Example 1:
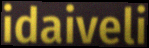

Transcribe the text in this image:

idaiveli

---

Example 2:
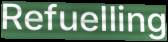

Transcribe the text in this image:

Refuelling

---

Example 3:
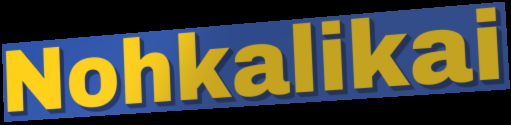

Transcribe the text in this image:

Nohkalikai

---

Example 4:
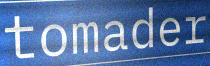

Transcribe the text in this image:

tomader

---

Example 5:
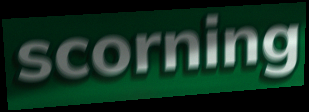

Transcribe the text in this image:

scorning